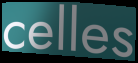
celles